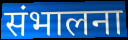
संभालना